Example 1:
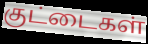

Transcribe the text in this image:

குட்டைகள்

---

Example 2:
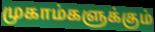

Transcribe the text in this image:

முகாம்களுக்கும்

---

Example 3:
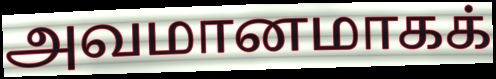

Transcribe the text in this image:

அவமானமாகக்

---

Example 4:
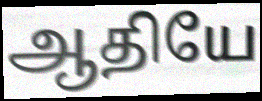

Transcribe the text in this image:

ஆதியே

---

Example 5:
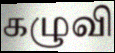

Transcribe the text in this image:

கழுவி